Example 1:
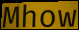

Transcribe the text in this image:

Mhow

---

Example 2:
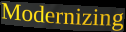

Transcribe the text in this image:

Modernizing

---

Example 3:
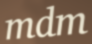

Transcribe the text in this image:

mdm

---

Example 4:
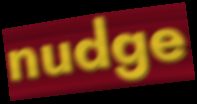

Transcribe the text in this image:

nudge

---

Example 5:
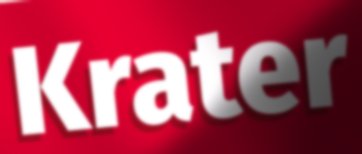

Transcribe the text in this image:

Krater